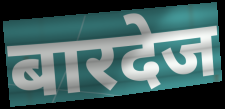
बारदेज